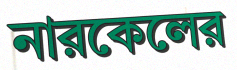
নারকেলের